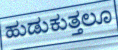
ಹುಡುಕುತ್ತಲೂ